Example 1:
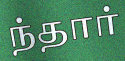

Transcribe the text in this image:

ந்தார்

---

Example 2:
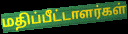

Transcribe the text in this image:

மதிப்பீட்டாளர்கள்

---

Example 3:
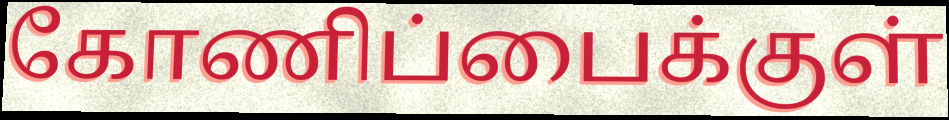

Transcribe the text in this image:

கோணிப்பைக்குள்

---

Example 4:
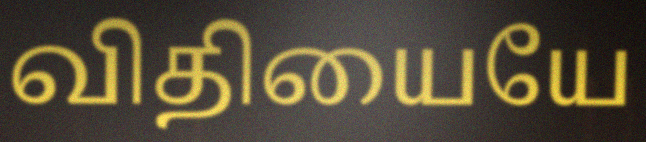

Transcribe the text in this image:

விதியையே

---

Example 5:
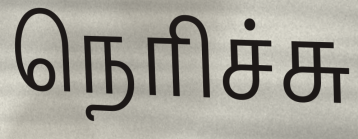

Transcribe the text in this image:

நெரிச்சு